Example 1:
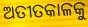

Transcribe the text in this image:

ଅତୀତକାଳକୁ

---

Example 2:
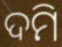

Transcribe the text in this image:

ଦମି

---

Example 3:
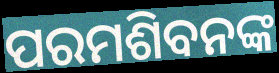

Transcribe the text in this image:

ପରମଶିବନଙ୍କ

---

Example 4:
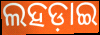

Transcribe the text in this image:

ଲହଡ଼ାଇ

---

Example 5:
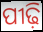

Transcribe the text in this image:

ପୀଢ଼ି